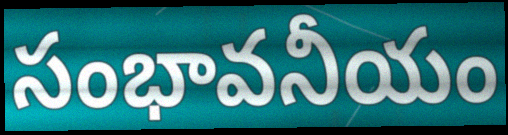
సంభావనీయం